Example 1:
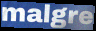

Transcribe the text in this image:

malgre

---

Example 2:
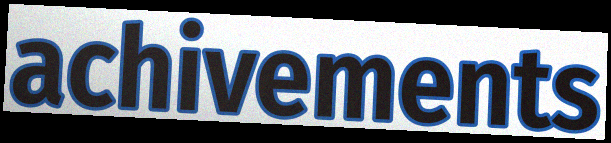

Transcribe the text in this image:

achivements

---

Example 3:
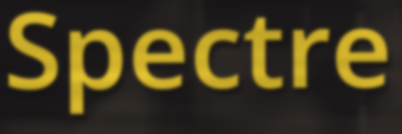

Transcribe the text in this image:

Spectre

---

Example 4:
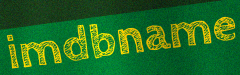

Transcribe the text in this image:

imdbname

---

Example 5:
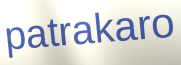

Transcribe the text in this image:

patrakaro